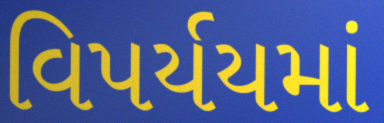
વિપર્યયમાં